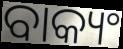
ବାକ୍ୟଂ